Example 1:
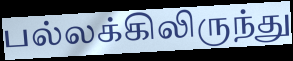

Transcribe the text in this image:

பல்லக்கிலிருந்து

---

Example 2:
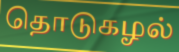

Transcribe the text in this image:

தொடுகழல்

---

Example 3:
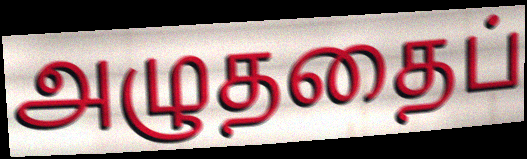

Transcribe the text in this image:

அழுததைப்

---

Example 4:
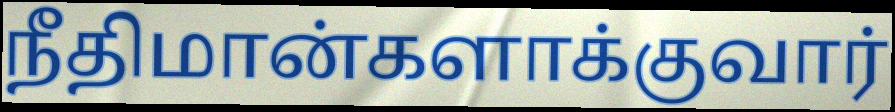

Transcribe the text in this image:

நீதிமான்களாக்குவார்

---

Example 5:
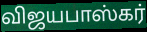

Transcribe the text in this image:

விஜயபாஸ்கர்